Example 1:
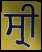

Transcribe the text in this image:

ਸ੍ਰੀ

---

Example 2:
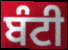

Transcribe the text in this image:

ਬੰਟੀ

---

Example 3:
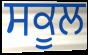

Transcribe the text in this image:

ਸਕੂਲ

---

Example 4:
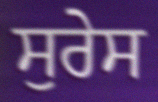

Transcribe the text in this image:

ਸੁਰੇਸ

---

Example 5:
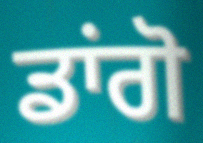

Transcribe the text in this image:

ਡਾਂਗੋ